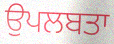
ਉਪਲਬਤਾ